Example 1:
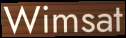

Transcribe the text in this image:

Wimsat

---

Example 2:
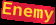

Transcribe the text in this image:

Enemy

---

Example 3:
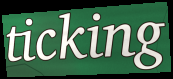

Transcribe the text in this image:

ticking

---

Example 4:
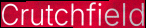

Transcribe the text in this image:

Crutchfield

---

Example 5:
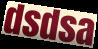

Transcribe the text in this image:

dsdsa